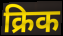
क्रिक